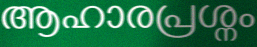
ആഹാരപ്രശ്നം